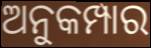
ଅନୁକମ୍ପାର